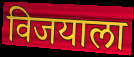
विजयाला